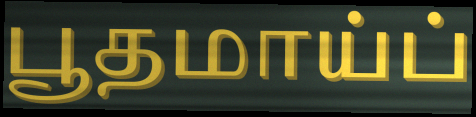
பூதமாய்ப்